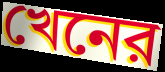
খেনের